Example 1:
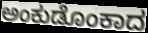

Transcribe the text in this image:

ಅಂಕುಡೊಂಕಾದ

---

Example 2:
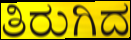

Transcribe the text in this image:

ತಿರುಗಿದ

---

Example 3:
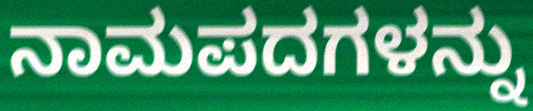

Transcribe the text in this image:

ನಾಮಪದಗಳನ್ನು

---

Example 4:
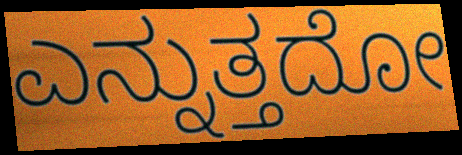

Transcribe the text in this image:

ಎನ್ನುತ್ತದೋ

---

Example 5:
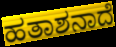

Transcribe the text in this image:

ಹತಾಶನಾದೆ